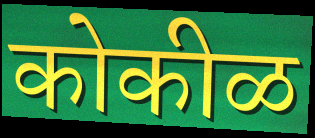
कोकीळ